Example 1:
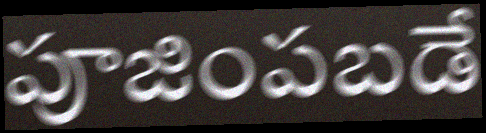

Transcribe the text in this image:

పూజింపబడే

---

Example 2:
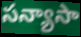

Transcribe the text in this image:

సన్యాసా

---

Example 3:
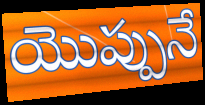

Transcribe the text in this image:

యొప్పునే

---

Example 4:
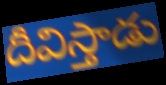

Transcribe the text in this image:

దీవిస్తాడు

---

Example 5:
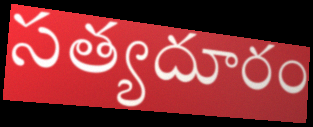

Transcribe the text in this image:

సత్యదూరం